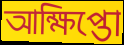
আক্ষিপ্তো